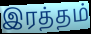
இரத்தம்